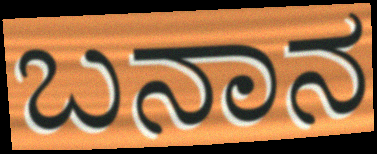
ಬನಾನ